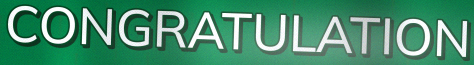
CONGRATULATION